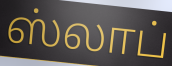
ஸ்லாப்